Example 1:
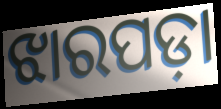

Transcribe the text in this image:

ଝାରପଡ଼ା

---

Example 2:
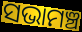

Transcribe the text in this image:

ସଭାମଞ୍ଚ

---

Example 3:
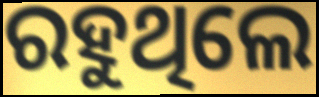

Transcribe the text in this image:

ରହୁଥିଲେ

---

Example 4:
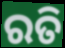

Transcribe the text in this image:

ରତି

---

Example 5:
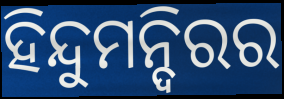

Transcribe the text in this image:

ହିନ୍ଦୁମନ୍ଦିରର